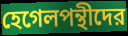
হেগেলপন্থীদের